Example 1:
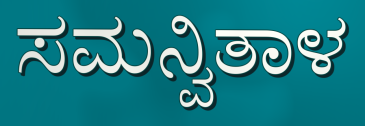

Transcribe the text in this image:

ಸಮನ್ವಿತಾಳ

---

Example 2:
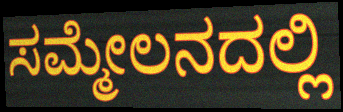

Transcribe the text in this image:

ಸಮ್ಮೇಲನದಲ್ಲಿ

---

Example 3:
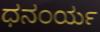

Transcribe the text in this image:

ಧನಂರ್ಯ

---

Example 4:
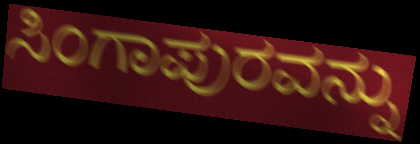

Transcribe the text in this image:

ಸಿಂಗಾಪುರವನ್ನು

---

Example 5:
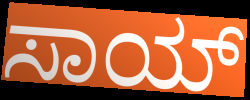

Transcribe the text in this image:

ಸಾಯ್